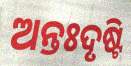
ଅନ୍ତଃଦୃଷ୍ଟି